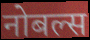
नोबल्स